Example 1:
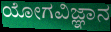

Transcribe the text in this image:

ಯೋಗವಿಜ್ಞಾನ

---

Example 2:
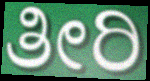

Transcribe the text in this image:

ತೀರಿ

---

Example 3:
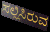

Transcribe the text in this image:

ಸಲ್ಲಿಸಿರುವ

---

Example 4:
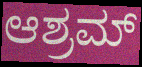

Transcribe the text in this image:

ಆಶ್ರಮ್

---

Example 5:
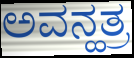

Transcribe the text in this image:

ಅವನ್ಹತ್ರ